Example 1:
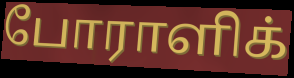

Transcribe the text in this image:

போராளிக்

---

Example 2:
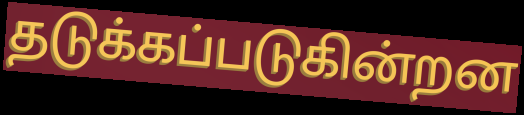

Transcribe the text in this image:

தடுக்கப்படுகின்றன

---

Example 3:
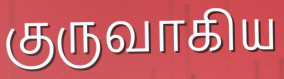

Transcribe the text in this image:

குருவாகிய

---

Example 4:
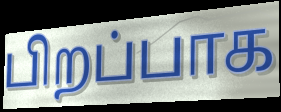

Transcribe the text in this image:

பிறப்பாக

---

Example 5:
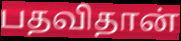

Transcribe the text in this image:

பதவிதான்